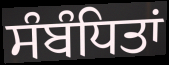
ਸੰਬੰਧਿਤਾਂ